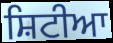
ਸ਼ਿਟੀਆ